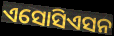
ଏସୋସିଏସନ